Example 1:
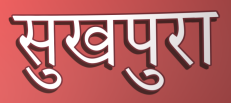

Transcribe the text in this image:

सुखपुरा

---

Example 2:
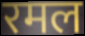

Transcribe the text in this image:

रमल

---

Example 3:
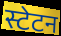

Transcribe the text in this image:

स्टेटन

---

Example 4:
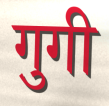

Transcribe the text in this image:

गुगी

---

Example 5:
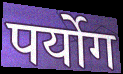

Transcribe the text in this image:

पर्योग